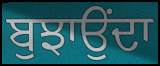
ਬੁਝਾਉਂਦਾ